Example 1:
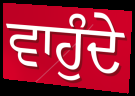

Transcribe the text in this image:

ਵਾਹੁੰਦੇ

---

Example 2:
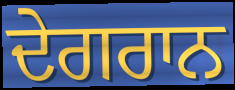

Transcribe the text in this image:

ਦੇਗਰਾਨ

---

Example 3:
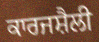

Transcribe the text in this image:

ਕਾਰਜਸ਼ੈਲੀ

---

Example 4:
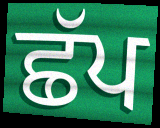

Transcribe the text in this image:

ਛੱਪ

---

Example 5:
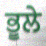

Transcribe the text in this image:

ਭੂਲੇ